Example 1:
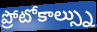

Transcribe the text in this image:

ప్రోటోకాల్స్ను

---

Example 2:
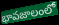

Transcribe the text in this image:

భావజాలంలో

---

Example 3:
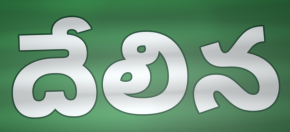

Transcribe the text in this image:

దేలిన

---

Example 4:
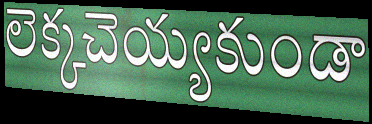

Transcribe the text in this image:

లెక్కచెయ్యకుండా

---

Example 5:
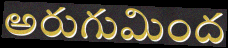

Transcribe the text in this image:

అరుగుమింద